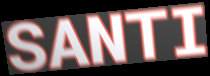
SANTI